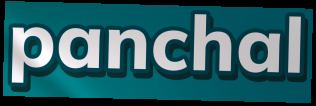
panchal